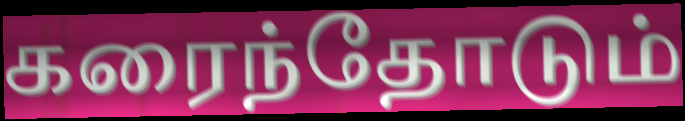
கரைந்தோடும்